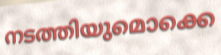
നടത്തിയുമൊക്കെ